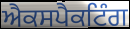
ਐਕਸਪੈਕਟਿੰਗ